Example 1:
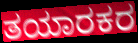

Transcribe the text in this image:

ತಯಾರಕರ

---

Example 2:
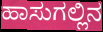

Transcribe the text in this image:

ಹಾಸುಗಲ್ಲಿನ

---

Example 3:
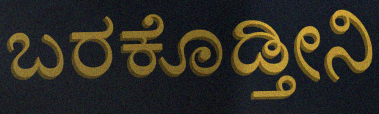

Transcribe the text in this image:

ಬರಕೊಡ್ತೀನಿ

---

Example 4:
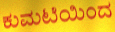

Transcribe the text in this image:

ಕುಮಟೆಯಿಂದ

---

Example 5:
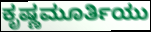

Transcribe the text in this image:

ಕೃಷ್ಣಮೂರ್ತಿಯು